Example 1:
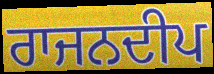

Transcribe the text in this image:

ਰਾਜਨਦੀਪ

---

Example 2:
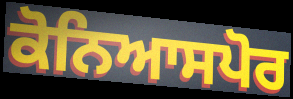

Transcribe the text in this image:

ਕੋਨਿਆਸਪੋਰ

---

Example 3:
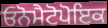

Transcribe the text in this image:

ਓਨੋਮੈਟੋਪੋਇਕ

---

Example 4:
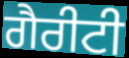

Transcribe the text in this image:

ਗੈਰੀਟੀ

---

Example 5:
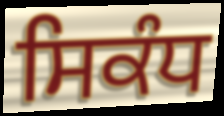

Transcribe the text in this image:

ਸਿਕੰਧ